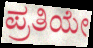
ಪ್ರತಿಯೇ